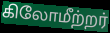
கிலோமீற்றர்